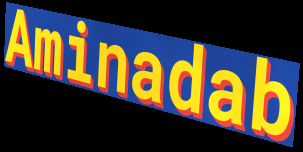
Aminadab